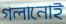
গলানোই